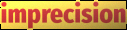
imprecision